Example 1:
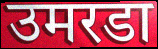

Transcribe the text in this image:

उमरडा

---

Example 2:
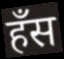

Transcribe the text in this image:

हँस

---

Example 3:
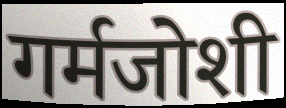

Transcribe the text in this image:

गर्मजोशी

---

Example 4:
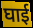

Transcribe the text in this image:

घाई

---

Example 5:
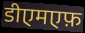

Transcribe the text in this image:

डीएमएफ़